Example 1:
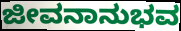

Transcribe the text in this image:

ಜೀವನಾನುಭವ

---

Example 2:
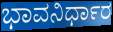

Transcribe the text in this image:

ಭಾವನಿರ್ಧಾರ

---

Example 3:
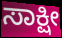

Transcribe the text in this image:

ಸಾಕ್ಷೀ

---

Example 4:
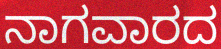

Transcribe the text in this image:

ನಾಗವಾರದ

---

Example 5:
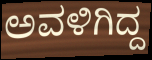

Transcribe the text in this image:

ಅವಳಿಗಿದ್ದ